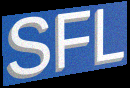
SFL